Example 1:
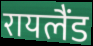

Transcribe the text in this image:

रायलैंड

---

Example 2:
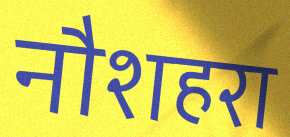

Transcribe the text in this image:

नौशहरा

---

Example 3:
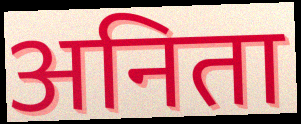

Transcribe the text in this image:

अनिता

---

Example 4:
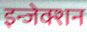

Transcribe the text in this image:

इन्जेक्शन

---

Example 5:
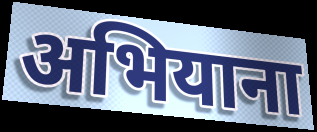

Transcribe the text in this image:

अभियाना